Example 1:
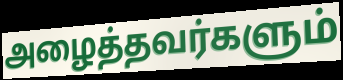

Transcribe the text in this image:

அழைத்தவர்களும்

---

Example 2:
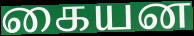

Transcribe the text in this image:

கையன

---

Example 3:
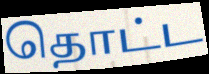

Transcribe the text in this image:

தொட்ட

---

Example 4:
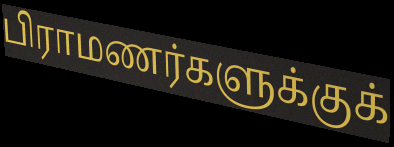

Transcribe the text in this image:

பிராமணர்களுக்குக்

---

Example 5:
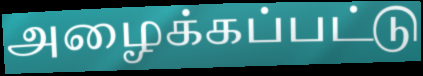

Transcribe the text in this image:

அழைக்கப்பட்டு